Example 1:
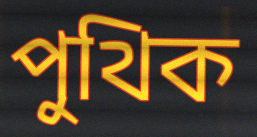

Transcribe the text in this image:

পুথিক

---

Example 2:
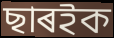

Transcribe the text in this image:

ছাৰইক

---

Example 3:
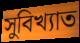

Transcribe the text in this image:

সুবিখ্যাত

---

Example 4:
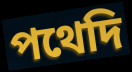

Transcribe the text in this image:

পথেদি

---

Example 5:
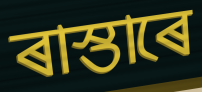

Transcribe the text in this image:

ৰাস্তাৰে